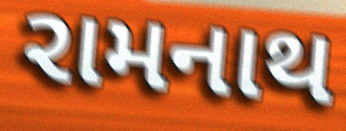
રામનાથ